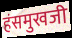
हंसमुखजी